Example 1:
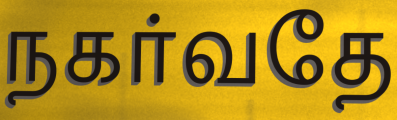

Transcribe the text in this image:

நகர்வதே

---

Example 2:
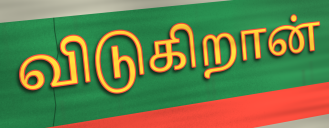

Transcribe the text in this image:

விடுகிறான்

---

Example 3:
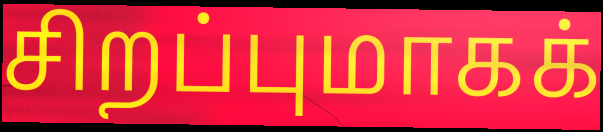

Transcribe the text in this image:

சிறப்புமாகக்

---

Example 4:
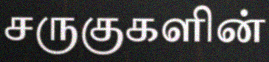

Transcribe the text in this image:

சருகுகளின்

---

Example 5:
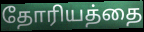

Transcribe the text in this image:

தோரியத்தை